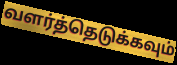
வளர்த்தெடுக்கவும்